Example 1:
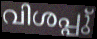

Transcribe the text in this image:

വിശപ്പു്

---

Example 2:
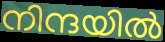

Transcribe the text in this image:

നിന്ദയിൽ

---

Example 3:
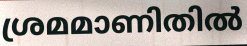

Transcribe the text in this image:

ശ്രമമാണിതിൽ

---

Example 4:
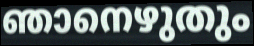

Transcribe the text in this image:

ഞാനെഴുതും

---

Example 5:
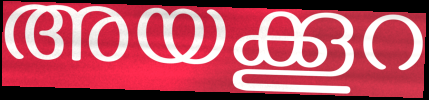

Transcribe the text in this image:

അയക്കൂറ